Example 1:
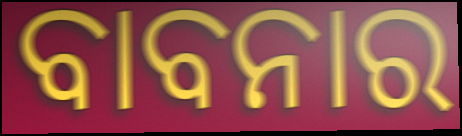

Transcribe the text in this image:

ବାବନାର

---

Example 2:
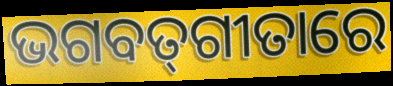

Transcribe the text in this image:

ଭଗବତ୍‌ଗୀତାରେ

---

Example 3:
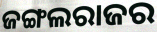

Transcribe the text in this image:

ଜଙ୍ଗଲରାଜର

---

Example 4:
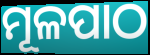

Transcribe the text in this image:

ମୂଳପାଠ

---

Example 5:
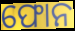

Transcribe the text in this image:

ଫୋନ